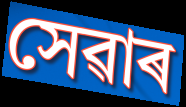
সেৱাৰ